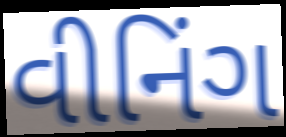
વીનિંગ